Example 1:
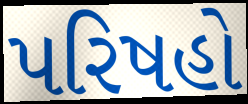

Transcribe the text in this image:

પરિષહો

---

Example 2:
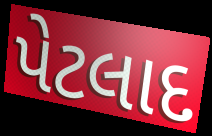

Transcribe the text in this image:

પેટલાદ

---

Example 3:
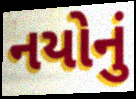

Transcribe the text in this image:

નયોનું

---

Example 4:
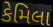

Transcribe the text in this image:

કેમિલા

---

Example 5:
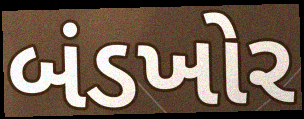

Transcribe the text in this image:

બંડખોર